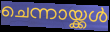
ചെന്നായ്ക്കൾ